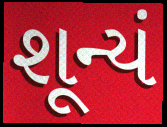
શૂન્યં